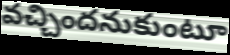
వచ్చిందనుకుంటూ